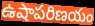
ఉషాపరిణయం